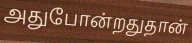
அதுபோன்றதுதான்